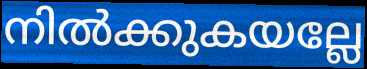
നിൽക്കുകയല്ലേ